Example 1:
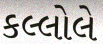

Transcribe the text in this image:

કલ્લોલે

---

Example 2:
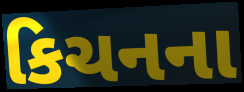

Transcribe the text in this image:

કિચનના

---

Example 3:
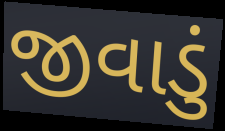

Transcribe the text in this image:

જીવાડું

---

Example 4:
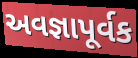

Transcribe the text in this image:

અવજ્ઞાપૂર્વક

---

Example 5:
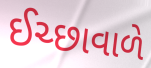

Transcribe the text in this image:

ઈચ્છાવાળે